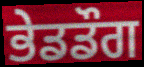
ਭੇਡਡੌਗ